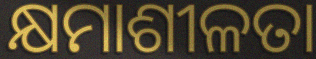
କ୍ଷମାଶୀଳତା